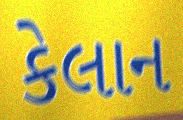
કેલાન